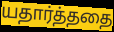
யதார்த்ததை